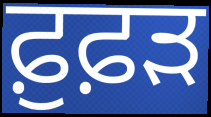
ਫ਼ੁਫ਼ੜ